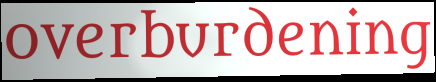
overburdening